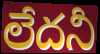
లేదనీ